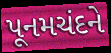
પૂનમચંદને